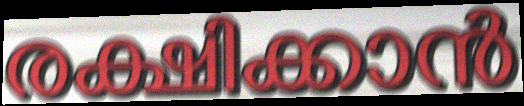
രക്ഷിക്കാൻ